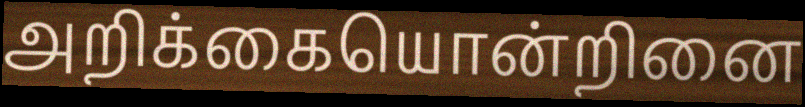
அறிக்கையொன்றினை